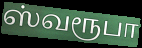
ஸ்வரூபா